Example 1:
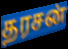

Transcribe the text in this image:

தரசன்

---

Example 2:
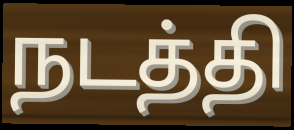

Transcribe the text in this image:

நடத்தி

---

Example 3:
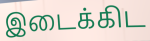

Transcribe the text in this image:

இடைக்கிட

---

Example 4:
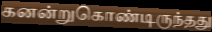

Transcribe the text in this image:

கனன்றுகொண்டிருந்தது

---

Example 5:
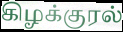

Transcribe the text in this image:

கிழக்குரல்